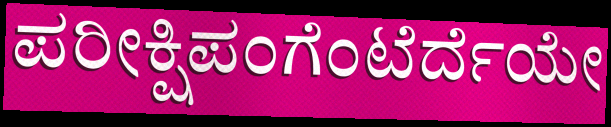
ಪರೀಕ್ಷಿಪಂಗೆಂಟೆರ್ದೆಯೇ